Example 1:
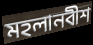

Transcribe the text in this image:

মহলানবীশ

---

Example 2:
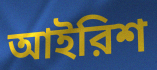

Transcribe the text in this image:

আইরিশ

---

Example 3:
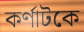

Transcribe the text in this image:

কর্ণাটকে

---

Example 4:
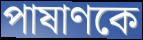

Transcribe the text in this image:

পাষাণকে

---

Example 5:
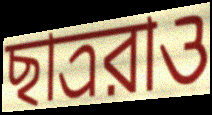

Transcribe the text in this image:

ছাত্ররাও